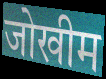
जोखीम